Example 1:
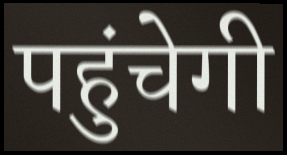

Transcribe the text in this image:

पहुंचेगी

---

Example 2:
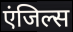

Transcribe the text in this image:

एंजिल्स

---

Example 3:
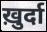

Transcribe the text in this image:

ख़ुर्दा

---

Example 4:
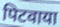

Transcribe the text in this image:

पिटवाया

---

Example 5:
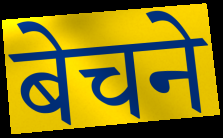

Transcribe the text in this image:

बेचने